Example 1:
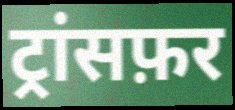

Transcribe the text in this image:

ट्रांसफ़र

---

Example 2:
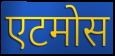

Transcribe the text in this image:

एटमोस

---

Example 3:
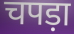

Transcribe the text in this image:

चपड़ा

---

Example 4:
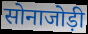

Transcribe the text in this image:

सोनाजोड़ी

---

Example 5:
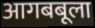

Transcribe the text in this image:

आगबबूला